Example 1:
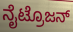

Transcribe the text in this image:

ನೈಟ್ರೊಜನ್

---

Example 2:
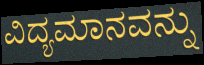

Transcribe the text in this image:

ವಿದ್ಯಮಾನವನ್ನು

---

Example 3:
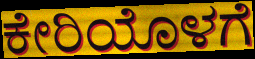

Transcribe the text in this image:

ಕೇರಿಯೊಳಗೆ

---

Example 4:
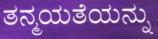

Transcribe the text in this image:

ತನ್ಮಯತೆಯನ್ನು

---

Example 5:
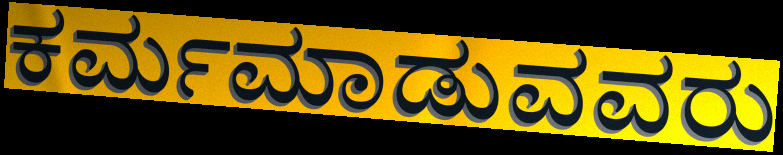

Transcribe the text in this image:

ಕರ್ಮಮಾಡುವವರು